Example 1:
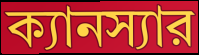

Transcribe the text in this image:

ক্যানস্যার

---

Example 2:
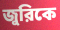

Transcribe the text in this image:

জুরিকে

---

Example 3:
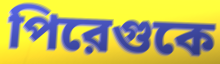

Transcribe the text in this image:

পিরেগুকে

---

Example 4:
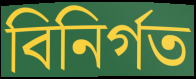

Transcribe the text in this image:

বিনির্গত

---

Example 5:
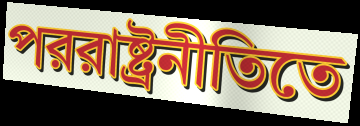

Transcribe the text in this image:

পররাষ্ট্রনীতিতে